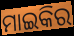
ମାଇକିର